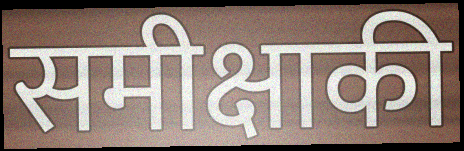
समीक्षाकी